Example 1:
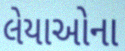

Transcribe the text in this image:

લેયાઓના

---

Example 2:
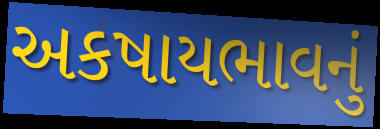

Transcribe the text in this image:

અકષાયભાવનું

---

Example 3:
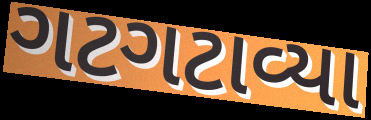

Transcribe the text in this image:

ગટગટાવ્યા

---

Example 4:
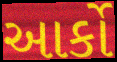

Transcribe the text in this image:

આર્કો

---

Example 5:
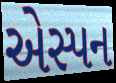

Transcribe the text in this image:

એસ્પન